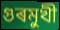
গুৰমুখী